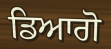
ਡਿਆਗੋ